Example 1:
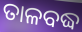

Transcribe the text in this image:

ତାଳବଦ୍ଧ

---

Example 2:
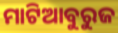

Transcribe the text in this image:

ମାଟିଆବୁରୁଜ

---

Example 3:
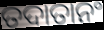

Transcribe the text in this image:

ତଦାତାନଂ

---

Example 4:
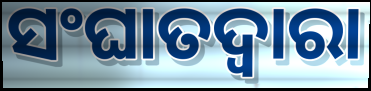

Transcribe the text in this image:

ସଂଘାତଦ୍ୱାରା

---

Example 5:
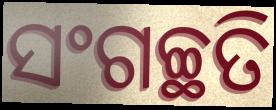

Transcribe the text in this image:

ସଂଗଚ୍ଛତି